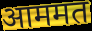
आममत